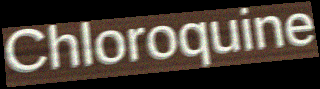
Chloroquine